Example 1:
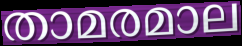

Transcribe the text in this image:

താമരമാല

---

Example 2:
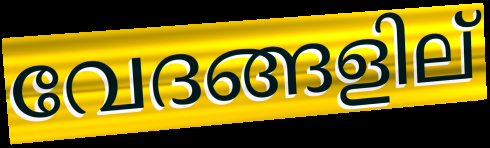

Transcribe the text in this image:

വേദങ്ങളില്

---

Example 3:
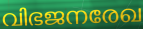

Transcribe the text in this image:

വിഭജനരേഖ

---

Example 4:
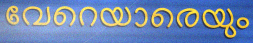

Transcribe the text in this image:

വേറെയാരെയും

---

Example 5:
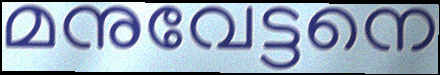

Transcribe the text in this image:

മനുവേട്ടനെ